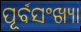
ପୂର୍ବସଂଖ୍ୟା